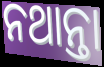
ନଥାନ୍ତା